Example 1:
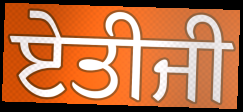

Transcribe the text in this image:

ਏਤੀਜੀ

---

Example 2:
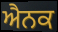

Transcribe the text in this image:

ਐਨਕ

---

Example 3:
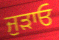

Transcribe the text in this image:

ਜੁੜਾਓ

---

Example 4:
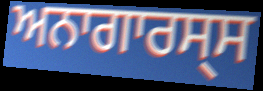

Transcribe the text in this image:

ਅਨਾਗਾਰਸ੍ਸ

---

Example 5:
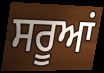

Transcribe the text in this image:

ਸਰੂਆਂ